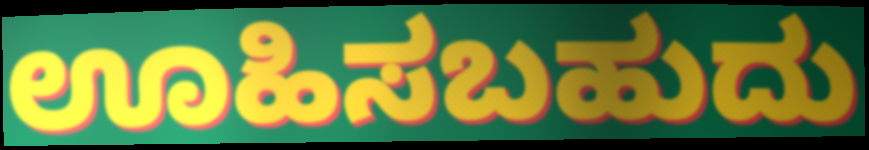
ಊಹಿಸಬಹುದು